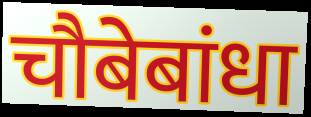
चौबेबांधा